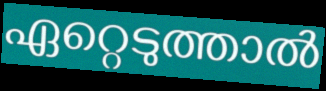
ഏറ്റെടുത്താൽ